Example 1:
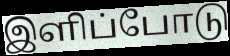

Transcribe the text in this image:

இளிப்போடு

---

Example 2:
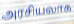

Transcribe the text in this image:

அரசியலாக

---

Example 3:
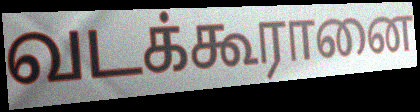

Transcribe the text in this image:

வடக்கூரானை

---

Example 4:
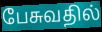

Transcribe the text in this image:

பேசுவதில்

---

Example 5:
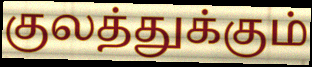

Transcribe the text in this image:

குலத்துக்கும்